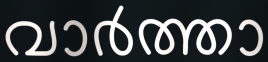
വാർത്താ